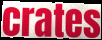
crates